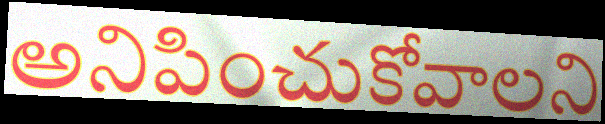
అనిపించుకోవాలని